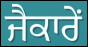
ਜੈਕਾਰੇਂ